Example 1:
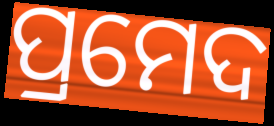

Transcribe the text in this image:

ପ୍ରମେଦ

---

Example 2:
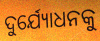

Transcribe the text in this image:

ଦୁର୍ଯ୍ୟୋଧନକୁ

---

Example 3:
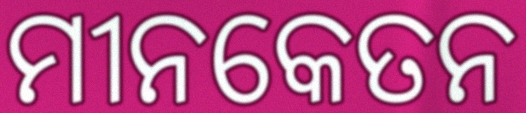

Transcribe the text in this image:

ମୀନକେତନ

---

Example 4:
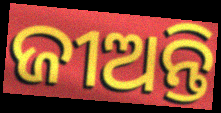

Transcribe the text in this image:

ଜୀଅନ୍ତି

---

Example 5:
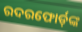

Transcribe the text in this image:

ରଦରଫୋର୍ଡ଼ଙ୍କ